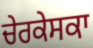
ਚੇਰਕੇਸਕਾ